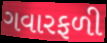
ગવારફળી